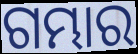
ଗମ୍ଭାର